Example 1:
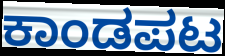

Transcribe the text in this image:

ಕಾಂಡಪಟ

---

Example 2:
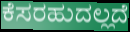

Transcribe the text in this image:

ಕೆಸರಹುದಲ್ಲದೆ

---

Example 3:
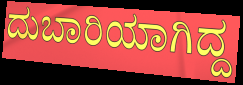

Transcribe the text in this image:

ದುಬಾರಿಯಾಗಿದ್ದ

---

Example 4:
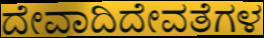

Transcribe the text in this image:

ದೇವಾದಿದೇವತೆಗಳ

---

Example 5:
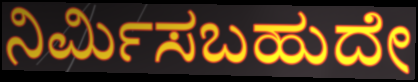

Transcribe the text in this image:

ನಿರ್ಮಿಸಬಹುದೇ